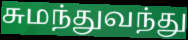
சுமந்துவந்து